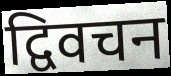
द्विवचन